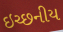
ઇચ્છનીય